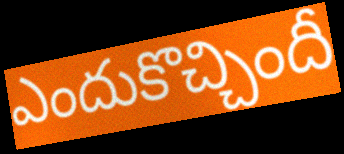
ఎందుకొచ్చిందీ